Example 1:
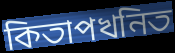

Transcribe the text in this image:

কিতাপখনিত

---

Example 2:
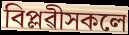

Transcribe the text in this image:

বিপ্লৱীসকলে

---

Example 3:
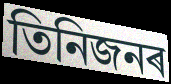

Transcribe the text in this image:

তিনিজনৰ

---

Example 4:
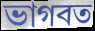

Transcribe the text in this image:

ভাগবত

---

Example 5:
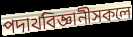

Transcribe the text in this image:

পদাৰ্থবিজ্ঞানীসকলে